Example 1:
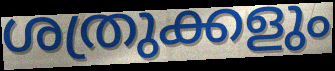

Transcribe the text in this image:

ശത്രുക്കളും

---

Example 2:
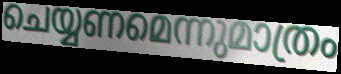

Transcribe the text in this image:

ചെയ്യണമെന്നുമാത്രം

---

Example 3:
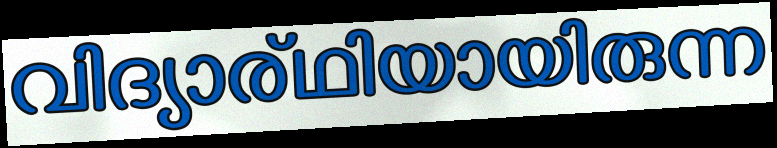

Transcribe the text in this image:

വിദ്യാര്ഥിയായിരുന്ന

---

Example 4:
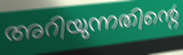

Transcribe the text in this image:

അറിയുന്നതിന്റെ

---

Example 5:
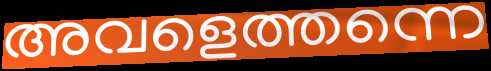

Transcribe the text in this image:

അവളെത്തന്നെ